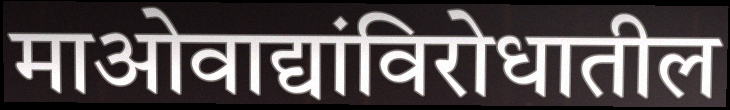
माओवाद्यांविरोधातील